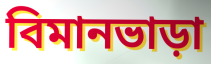
বিমানভাড়া